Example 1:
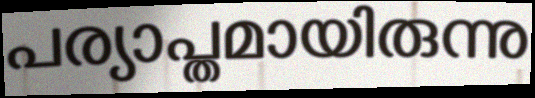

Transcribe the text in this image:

പര്യാപ്തമായിരുന്നു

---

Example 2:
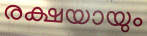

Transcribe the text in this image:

രക്ഷയായും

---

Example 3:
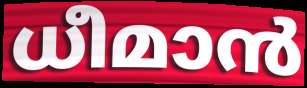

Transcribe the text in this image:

ധീമാൻ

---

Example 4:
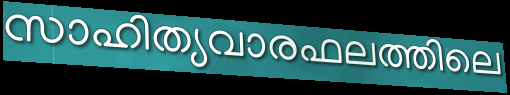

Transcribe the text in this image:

സാഹിത്യവാരഫലത്തിലെ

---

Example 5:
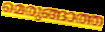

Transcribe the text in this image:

മെരുങ്ങാത്ത